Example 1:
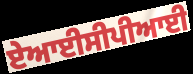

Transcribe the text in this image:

ਏਆਈਸੀਪੀਆਈ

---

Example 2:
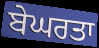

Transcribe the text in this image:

ਬੇਘਰਤਾ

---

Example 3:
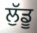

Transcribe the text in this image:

ਲੁੱਡੂ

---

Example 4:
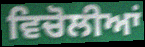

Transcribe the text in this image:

ਵਿਚੋਲੀਆਂ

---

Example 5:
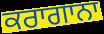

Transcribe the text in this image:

ਕਰਾਗਾਨਾ